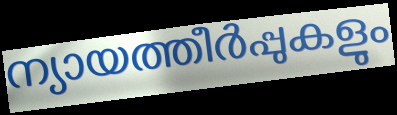
ന്യായത്തീർപ്പുകളും